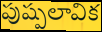
పుష్పలావిక